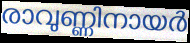
രാവുണ്ണിനായർ